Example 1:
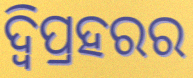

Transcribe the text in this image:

ଦ୍ବିପ୍ରହରର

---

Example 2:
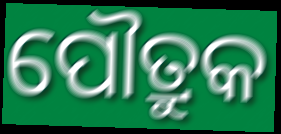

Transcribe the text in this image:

ପୌତ୍ରୁକ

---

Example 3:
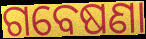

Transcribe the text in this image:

ଗବେଷଣା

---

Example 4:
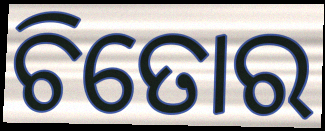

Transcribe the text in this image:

ଚିତୋର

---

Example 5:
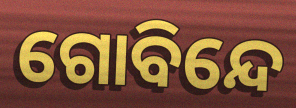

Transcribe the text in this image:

ଗୋବିନ୍ଦେ